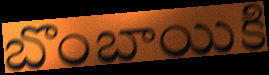
బొంబాయికి